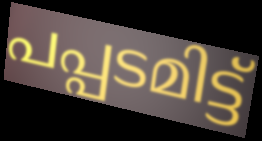
പപ്പടമിട്ട്